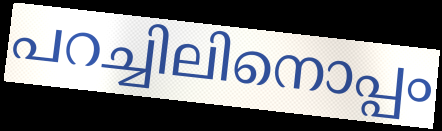
പറച്ചിലിനൊപ്പം